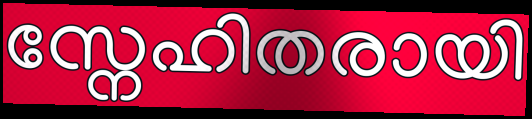
സ്നേഹിതരായി